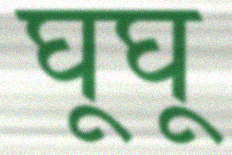
घूघू